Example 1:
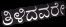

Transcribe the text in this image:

ತಿಳಿದವರೇ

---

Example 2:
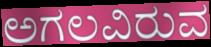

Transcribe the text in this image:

ಅಗಲವಿರುವ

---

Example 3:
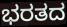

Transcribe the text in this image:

ಭರತದ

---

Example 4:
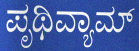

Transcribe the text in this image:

ಪೃಥಿವ್ಯಾಮ್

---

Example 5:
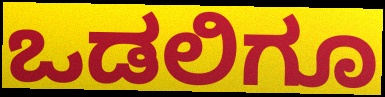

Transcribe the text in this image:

ಒಡಲಿಗೂ